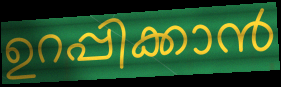
ഉറപ്പിക്കാൻ